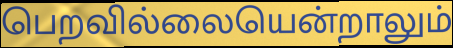
பெறவில்லையென்றாலும்